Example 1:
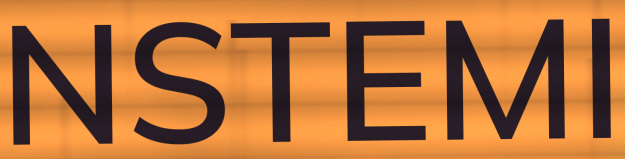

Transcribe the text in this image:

NSTEMI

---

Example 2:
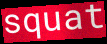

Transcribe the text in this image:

squat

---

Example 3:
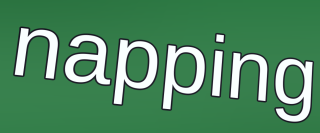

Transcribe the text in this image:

napping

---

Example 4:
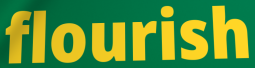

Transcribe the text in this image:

flourish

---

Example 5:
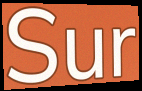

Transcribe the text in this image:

Sur